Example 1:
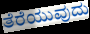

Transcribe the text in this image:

ತೆರೆಯುವುದು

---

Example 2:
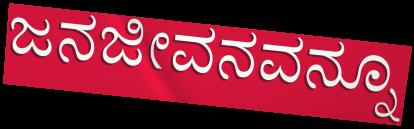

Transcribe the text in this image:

ಜನಜೀವನವನ್ನೂ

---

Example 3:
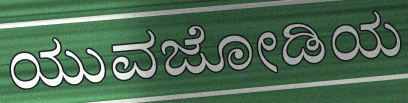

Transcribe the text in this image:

ಯುವಜೋಡಿಯ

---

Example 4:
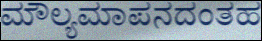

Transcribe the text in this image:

ಮೌಲ್ಯಮಾಪನದಂತಹ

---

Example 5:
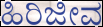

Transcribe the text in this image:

ಹಿರಿಜೀವ